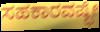
ಸಹಕಾರವಷ್ಟೇ